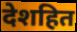
देशहित